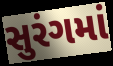
સુરંગમાં